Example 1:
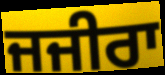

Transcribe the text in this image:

ਜਜੀਰਾ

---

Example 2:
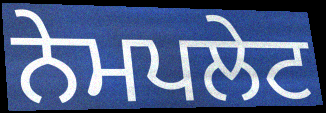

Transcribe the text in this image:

ਨੇਮਪਲੇਟ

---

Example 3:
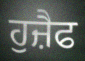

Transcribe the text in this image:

ਹੁਜ਼ੈਫ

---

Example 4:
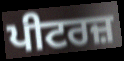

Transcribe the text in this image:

ਪੀਟਰਜ਼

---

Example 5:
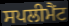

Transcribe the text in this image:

ਸਪਲੀਮੈਂਟ